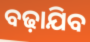
ବଢ଼ାଯିବ